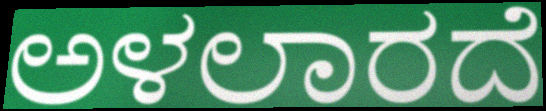
ಅಳಲಾರದೆ